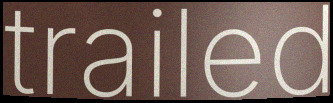
trailed